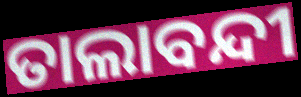
ତାଲାବନ୍ଦୀ